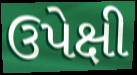
ઉપેક્ષી